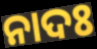
ନାଦଃ